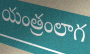
యంత్రంలాగ